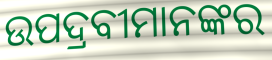
ଉପଦ୍ରବୀମାନଙ୍କର